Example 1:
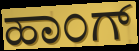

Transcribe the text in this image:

ಹಾಂಗ್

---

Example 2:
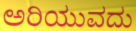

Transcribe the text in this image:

ಅರಿಯುವದು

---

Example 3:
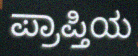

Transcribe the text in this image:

ಪ್ರಾಪ್ತಿಯ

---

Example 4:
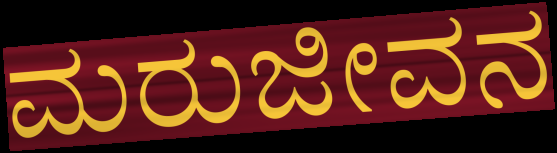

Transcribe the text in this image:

ಮರುಜೀವನ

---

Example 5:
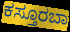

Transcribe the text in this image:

ಕಸ್ತೂರಬಾ